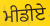
ਮੀਡੀਏ